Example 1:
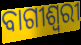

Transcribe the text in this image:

ବାଗୀଶ୍ୱରୀ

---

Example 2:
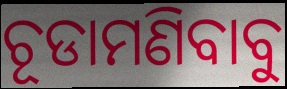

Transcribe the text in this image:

ଚୂଡାମଣିବାବୁ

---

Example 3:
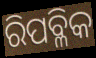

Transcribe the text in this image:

ରିପବ୍ଳିକ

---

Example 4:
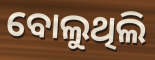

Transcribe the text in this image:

ବୋଲୁଥିଲି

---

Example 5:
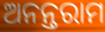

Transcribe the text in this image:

ଅନନ୍ତରାମ